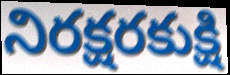
నిరక్షరకుక్షి